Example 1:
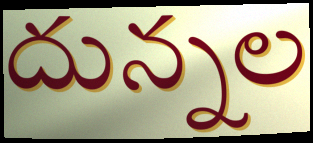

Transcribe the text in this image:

దున్నల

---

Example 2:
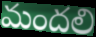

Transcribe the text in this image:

మందలి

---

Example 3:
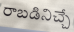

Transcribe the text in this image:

రాబడినిచ్చే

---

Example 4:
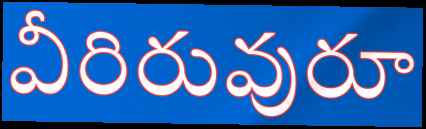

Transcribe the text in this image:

వీరిరువురూ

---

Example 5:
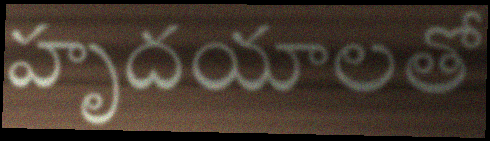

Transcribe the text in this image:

హృదయాలతో